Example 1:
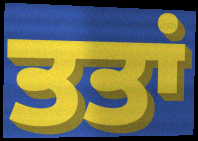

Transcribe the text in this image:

ਤਤਾਂ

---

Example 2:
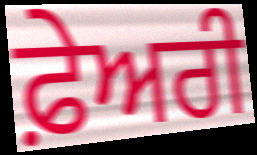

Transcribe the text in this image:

ਫ਼ੇਅਰੀ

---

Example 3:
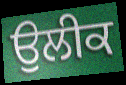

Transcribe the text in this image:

ਉਲੀਕ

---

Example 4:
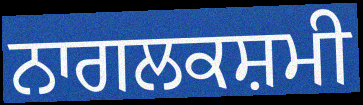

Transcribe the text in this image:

ਨਾਗਲਕਸ਼ਮੀ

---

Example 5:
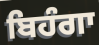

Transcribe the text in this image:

ਬਿਹੰਗਾ